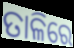
ତାଳିରେ